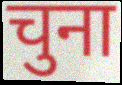
चुना